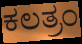
ಕಲತ್ರಂ